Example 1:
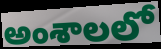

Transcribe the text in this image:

అంశాలలో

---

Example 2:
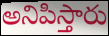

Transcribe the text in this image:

అనిపిస్తారు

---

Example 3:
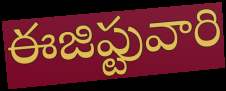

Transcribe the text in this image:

ఈజిప్టువారి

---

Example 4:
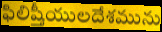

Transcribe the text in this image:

ఫిలిష్తీయులదేశమును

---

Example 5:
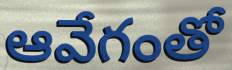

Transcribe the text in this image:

ఆవేగంతో